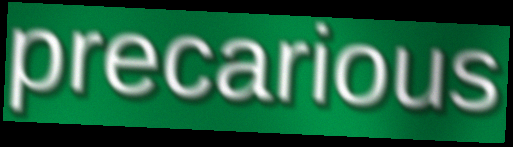
precarious